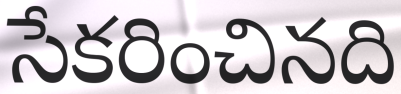
సేకరించినది